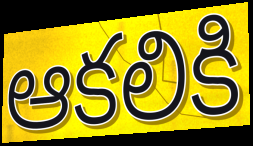
ఆకలికి